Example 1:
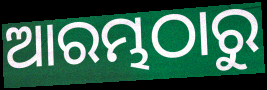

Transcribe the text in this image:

ଆରମ୍ଭଠାରୁ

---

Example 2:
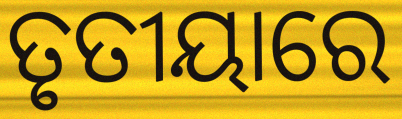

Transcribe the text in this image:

ତୃତୀୟାରେ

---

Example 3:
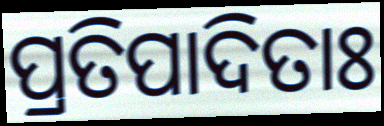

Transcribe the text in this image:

ପ୍ରତିପାଦିତାଃ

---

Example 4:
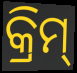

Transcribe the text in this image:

କ୍ରିମ୍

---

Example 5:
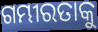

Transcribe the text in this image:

ଗମ୍ଭୀରତାକୁ